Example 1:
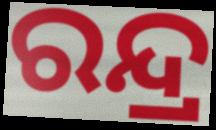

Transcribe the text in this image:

ରନ୍ଦ୍ର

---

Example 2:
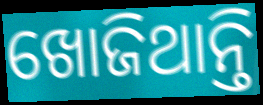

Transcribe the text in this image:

ଖୋଜିଥାନ୍ତି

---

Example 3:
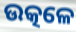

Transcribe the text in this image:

ଉତ୍କଳେ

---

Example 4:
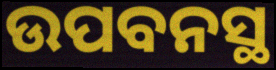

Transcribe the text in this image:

ଉପବନସ୍ଥ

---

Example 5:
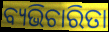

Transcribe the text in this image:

ବ୍ୟଭିଚାରିତା